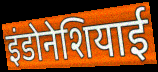
इंडोनेशियाई